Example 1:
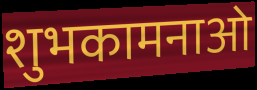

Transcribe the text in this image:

शुभकामनाओ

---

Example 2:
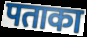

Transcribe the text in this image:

पताका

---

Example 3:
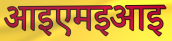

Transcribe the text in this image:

आइएमइआइ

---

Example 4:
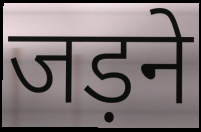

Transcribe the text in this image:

जड़ने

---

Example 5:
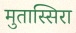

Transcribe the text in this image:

मुतास्सिरा